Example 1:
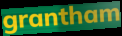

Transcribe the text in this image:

grantham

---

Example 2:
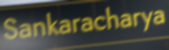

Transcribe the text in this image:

Sankaracharya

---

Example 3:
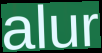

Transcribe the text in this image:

alur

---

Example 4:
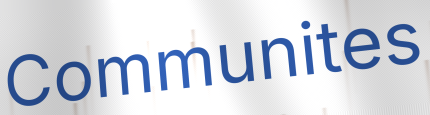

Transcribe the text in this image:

Communites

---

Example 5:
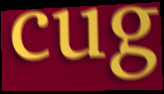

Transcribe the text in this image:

cug